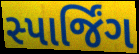
સ્પાર્જિંગ